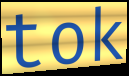
tok